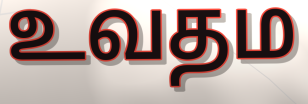
உவதம